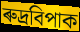
ৰুদ্ৰবিপাক